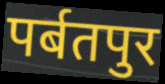
पर्बतपुर